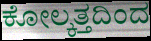
ಕೋಲ್ಕತ್ತದಿಂದ